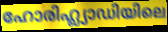
ഹോരിഹ്ല്യാഡിയിലെ